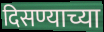
दिसण्याच्या